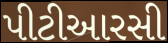
પીટીઆરસી